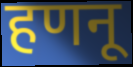
हणनू